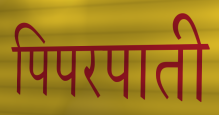
पिपरपाती